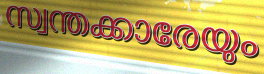
സ്വന്തക്കാരേയും